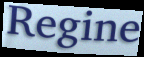
Regine